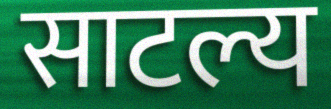
साटल्य